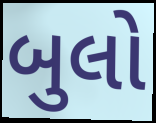
બુલો